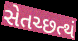
સેતચ્છત્થં